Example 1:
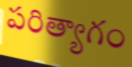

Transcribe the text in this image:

పరిత్యాగం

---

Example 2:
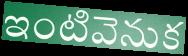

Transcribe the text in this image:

ఇంటివెనుక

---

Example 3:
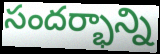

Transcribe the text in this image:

సందర్భాన్ని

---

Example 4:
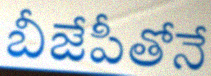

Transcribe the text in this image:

బీజేపీతోనే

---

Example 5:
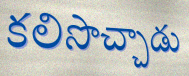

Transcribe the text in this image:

కలిసొచ్చాడు